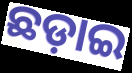
ଛଡ଼ାଇ